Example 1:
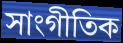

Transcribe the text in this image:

সাংগীতিক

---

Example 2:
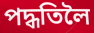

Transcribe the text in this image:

পদ্ধতিলৈ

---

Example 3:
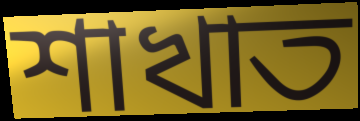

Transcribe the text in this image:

শাখাত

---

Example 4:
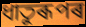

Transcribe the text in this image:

ধাতুৰূপৰ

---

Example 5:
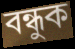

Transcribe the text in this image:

বন্ধুক